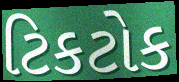
ટિકટોક